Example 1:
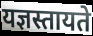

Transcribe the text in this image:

यज्ञस्तायते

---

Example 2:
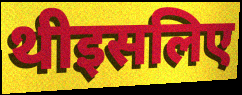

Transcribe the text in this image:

थीइसलिए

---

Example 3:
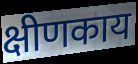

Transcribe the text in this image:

क्षीणकाय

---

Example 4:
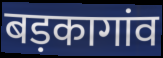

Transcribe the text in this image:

बड़कागांव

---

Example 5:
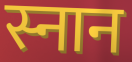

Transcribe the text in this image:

स्‍नान